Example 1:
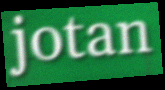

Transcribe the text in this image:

jotan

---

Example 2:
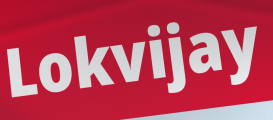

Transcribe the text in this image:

Lokvijay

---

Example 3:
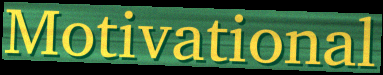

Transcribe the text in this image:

Motivational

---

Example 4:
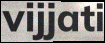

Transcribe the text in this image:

vijjati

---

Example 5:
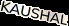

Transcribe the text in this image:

KAUSHAL